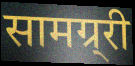
सामग्र्री